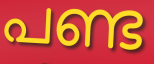
പണ്ട